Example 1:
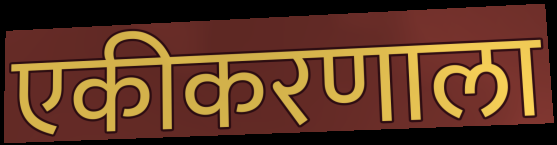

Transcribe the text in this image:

एकीकरणाला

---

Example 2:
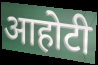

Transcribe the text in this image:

आहोटी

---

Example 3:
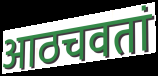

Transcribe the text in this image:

आठचवतां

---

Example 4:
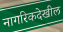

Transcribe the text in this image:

नागरिकदेखील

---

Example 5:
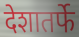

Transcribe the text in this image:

देशातर्फे